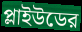
প্লাইউডের